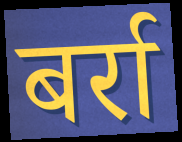
बर्रा